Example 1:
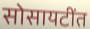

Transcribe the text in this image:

सोसायटींत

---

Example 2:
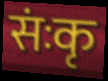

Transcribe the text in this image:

संःकृ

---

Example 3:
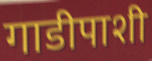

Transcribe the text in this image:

गाडीपाशी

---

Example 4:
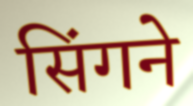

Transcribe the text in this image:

सिंगने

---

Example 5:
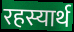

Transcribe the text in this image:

रहस्यार्थ